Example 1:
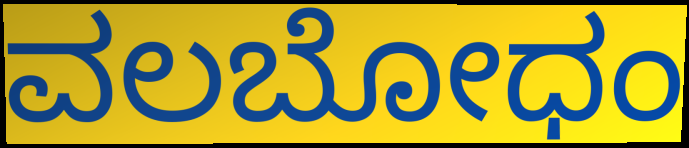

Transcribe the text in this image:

ವಲಬೋಧಂ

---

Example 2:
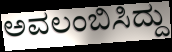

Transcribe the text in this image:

ಅವಲಂಬಿಸಿದ್ದು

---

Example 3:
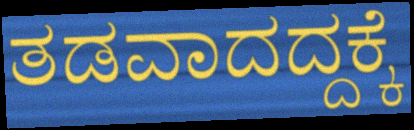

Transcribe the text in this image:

ತಡವಾದದ್ದಕ್ಕೆ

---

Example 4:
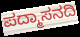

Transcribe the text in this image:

ಪದ್ಮಾಸನದಿ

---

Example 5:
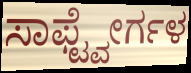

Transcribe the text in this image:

ಸಾಫ್ಟ್ವೇರ್ಗಳ